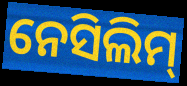
ନେସିଲିମ୍